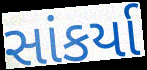
સાંકર્યા